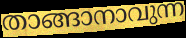
താങ്ങാനാവുന്ന